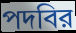
পদবির